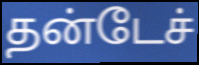
தன்டேச்